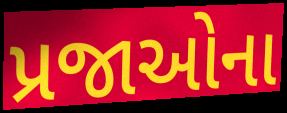
પ્રજાઓના